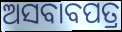
ଅସବାବପତ୍ର